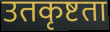
उतकृष्टता